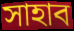
সাহাব